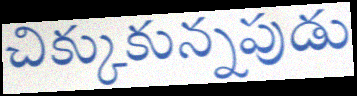
చిక్కుకున్నపుడు